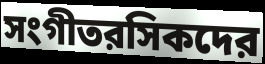
সংগীতরসিকদের